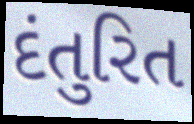
દંતુરિત